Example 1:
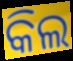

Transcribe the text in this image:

କିଲ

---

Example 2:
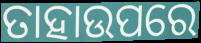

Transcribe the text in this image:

ତାହାଉପରେ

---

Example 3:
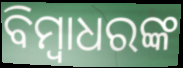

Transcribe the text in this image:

ବିମ୍ବାଧରଙ୍କ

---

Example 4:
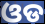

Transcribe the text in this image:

ଓଡ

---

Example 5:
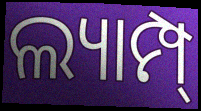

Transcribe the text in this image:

ଲ୍ୟାମ୍ପ୍